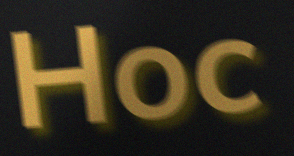
Hoc